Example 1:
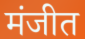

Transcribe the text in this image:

मंजीत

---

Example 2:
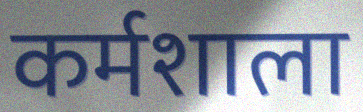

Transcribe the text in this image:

कर्मशाला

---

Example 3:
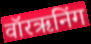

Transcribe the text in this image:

वॉरऋनिंग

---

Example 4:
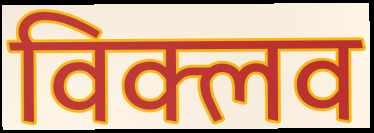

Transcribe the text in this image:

विक्लव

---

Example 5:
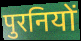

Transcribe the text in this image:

पुरनियों